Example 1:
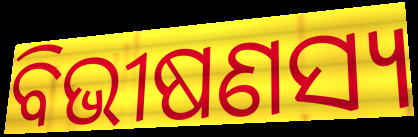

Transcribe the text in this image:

ବିଭୀଷଣସ୍ୟ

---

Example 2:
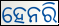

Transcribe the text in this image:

ହେନରି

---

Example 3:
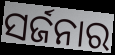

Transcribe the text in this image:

ସର୍ଜନାର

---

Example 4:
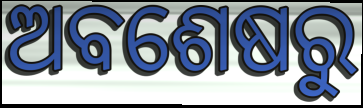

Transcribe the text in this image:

ଅବଶେଷରୁ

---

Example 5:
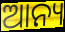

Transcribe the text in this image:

ଆନ୍ୟ